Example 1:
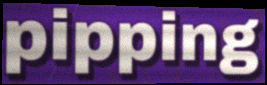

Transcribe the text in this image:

pipping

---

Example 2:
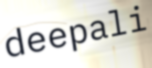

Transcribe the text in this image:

deepali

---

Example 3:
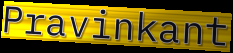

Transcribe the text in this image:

Pravinkant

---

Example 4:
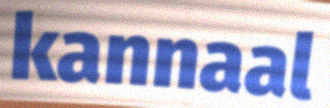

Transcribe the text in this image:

kannaal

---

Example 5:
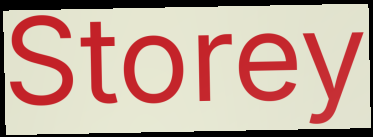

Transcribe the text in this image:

Storey